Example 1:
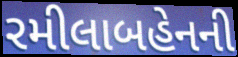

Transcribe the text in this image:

રમીલાબહેનની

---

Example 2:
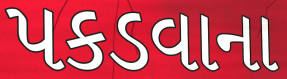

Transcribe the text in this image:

પકડવાના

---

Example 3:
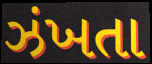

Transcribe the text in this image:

ઝંખતા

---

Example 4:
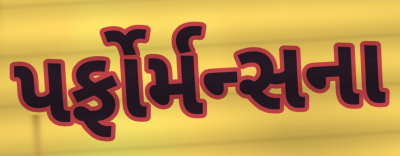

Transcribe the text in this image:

પર્ફોર્મન્સના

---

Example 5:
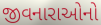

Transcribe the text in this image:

જીવનારાઓનો